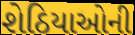
શેઠિયાઓની